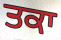
ਤਕਾ